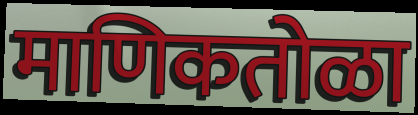
माणिकतोळा